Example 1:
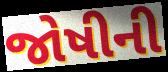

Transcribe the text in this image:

જોષીની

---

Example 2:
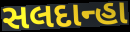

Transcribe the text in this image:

સલદાન્હા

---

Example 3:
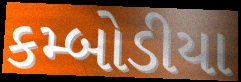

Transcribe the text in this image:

કમ્બોડીયા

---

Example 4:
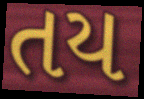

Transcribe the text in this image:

તય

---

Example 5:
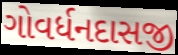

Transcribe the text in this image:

ગોવર્ધનદાસજી